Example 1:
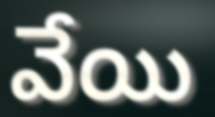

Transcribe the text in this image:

వేయి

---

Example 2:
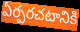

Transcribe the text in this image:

ఏర్పరచటానికి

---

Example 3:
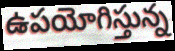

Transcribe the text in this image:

ఉపయోగిస్తున్న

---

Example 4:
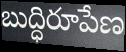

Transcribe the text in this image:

బుద్ధిరూపేణ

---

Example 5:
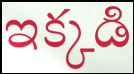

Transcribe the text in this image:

ఇక్కడి